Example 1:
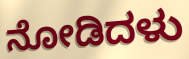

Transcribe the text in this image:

ನೋಡಿದಳು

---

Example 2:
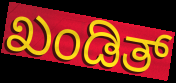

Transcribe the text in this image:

ಖಂಡಿತ್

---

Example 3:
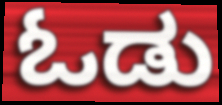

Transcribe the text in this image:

ಓಡು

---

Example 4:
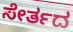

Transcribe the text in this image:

ಸೇರ್ತದ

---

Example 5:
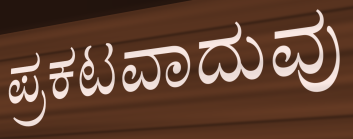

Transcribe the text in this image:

ಪ್ರಕಟವಾದುವು